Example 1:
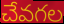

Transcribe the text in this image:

చేవగల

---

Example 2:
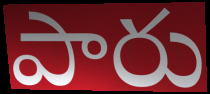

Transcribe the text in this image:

పారు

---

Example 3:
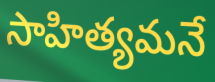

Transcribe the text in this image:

సాహిత్యమనే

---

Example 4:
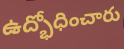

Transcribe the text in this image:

ఉద్భోధించారు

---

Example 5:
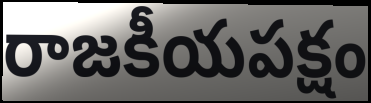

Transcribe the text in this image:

రాజకీయపక్షం